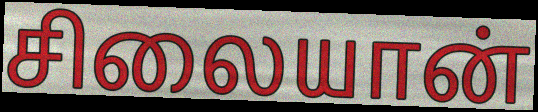
சிலையான்